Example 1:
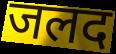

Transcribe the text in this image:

जलद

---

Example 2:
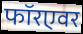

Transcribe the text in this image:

फॉरएवर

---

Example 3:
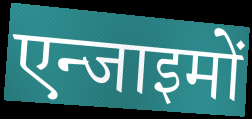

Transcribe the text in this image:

एन्जाइमों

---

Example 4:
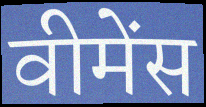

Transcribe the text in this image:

वीमेंस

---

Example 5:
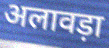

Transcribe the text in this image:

अलावड़ा